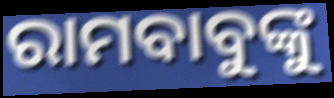
ରାମବାବୁଙ୍କୁ